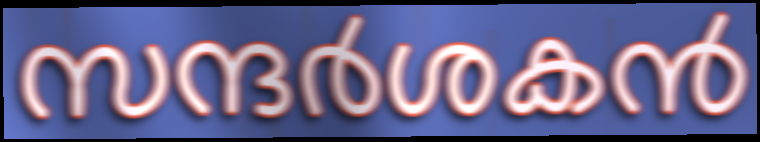
സന്ദർശകൻ